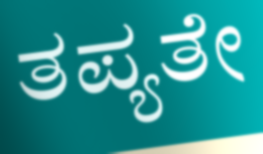
ತಪ್ಯತೇ